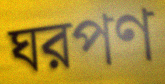
ঘরপণ